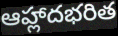
ఆహ్లాదభరిత